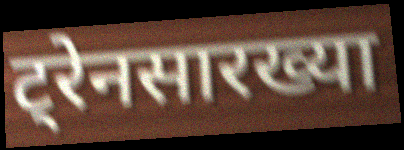
ट्रेनसारख्या